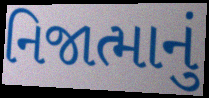
નિજાત્માનું